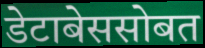
डेटाबेससोबत